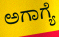
ಅಗಾಗ್ಯೆ